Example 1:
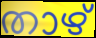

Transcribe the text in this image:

താഴ്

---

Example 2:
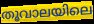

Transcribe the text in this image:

തൂവാലയിലെ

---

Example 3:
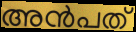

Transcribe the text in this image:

അൻപത്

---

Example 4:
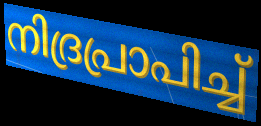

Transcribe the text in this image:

നിദ്രപ്രാപിച്ച്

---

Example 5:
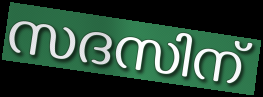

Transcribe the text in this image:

സദസിന്